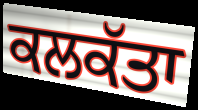
ਕਲਕੱਤਾ